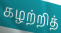
கழற்றித்